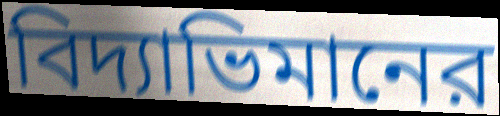
বিদ্যাভিমানের